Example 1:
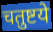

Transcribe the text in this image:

चतुष्टये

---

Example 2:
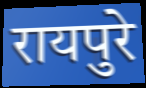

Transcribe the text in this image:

रायपुरे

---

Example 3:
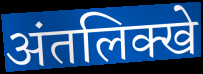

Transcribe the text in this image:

अंतलिक्खे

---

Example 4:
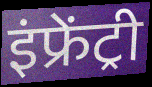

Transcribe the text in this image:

इंफ्रेंट्री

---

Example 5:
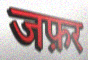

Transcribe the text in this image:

जफ़र